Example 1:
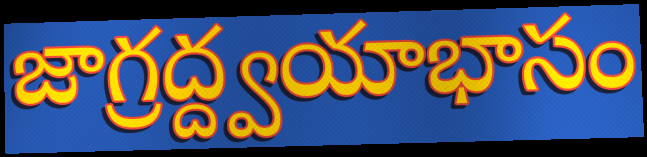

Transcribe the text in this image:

జాగ్రద్ద్వయాభాసం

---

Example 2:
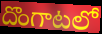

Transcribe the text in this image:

దొంగాటలో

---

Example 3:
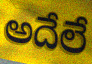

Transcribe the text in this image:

అదేలే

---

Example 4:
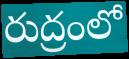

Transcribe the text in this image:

రుద్రంలో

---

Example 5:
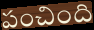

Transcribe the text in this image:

పంచింది